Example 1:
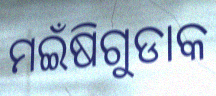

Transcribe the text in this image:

ମଇଁଷିଗୁଡାକ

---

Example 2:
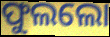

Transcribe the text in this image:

ଫୁଲଲୋ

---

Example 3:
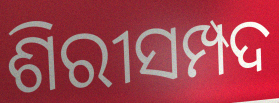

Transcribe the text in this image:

ଶିରୀସମ୍ପଦ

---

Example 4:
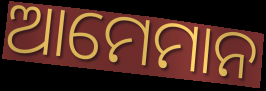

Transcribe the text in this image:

ଆମେମାନ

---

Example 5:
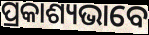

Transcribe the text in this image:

ପ୍ରକାଶ୍ୟଭାବେ